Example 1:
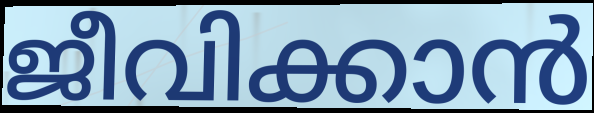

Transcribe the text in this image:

ജീവിക്കാൻ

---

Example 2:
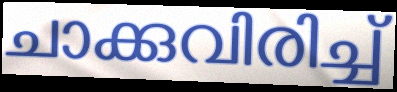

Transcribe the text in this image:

ചാക്കുവിരിച്ച്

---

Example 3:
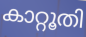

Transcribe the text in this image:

കാറ്റൂതി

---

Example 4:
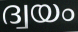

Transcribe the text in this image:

ദ്വയം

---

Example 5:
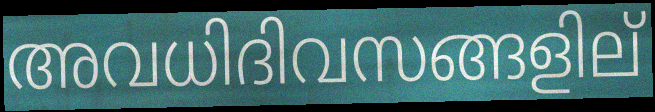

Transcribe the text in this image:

അവധിദിവസങ്ങളില്